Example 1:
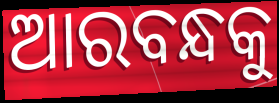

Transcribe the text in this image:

ଆରବନ୍ଧକୁ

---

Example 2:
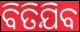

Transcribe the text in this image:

ବିତିଯିବ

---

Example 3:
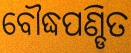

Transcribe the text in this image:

ବୌଦ୍ଧପଣ୍ଡିତ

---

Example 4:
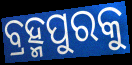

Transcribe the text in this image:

ବ୍ରହ୍ମପୁରକୁ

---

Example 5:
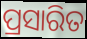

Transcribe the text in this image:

ପ୍ରସାରିତ